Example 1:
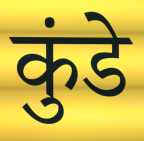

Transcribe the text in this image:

कुंडे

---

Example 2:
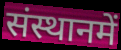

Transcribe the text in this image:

संस्थानमें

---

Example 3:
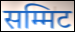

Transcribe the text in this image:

सम्मिट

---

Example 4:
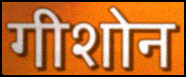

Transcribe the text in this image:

गीशोन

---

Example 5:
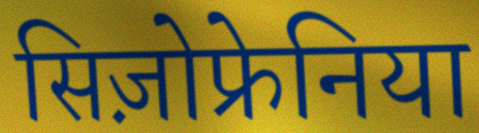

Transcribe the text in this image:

सिज़ोफ्रेनिया